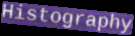
Histography